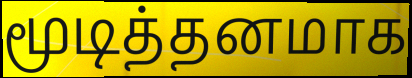
மூடித்தனமாக